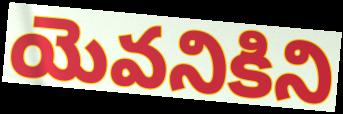
యెవనికిని